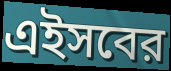
এইসবের